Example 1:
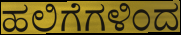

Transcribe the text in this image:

ಹಲಿಗೆಗಳಿಂದ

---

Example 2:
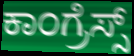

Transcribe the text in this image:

ಕಾಂಗ್ರೆಸ್ಸ್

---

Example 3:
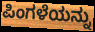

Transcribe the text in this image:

ಪಿಂಗಳೆಯನ್ನು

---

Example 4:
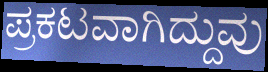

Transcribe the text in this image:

ಪ್ರಕಟವಾಗಿದ್ದುವು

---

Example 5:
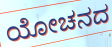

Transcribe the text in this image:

ಯೋಚನದ